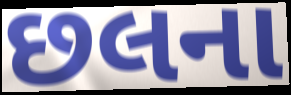
છલના